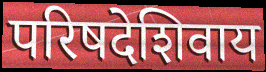
परिषदेशिवाय